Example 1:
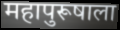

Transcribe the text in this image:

महापुरूषाला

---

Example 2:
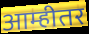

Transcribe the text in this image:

आम्हीतर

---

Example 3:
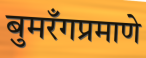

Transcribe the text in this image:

बुमरँगप्रमाणे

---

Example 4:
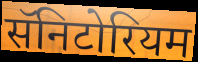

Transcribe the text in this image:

सॅनिटोरियम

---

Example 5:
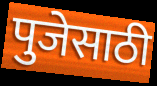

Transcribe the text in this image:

पुजेसाठी